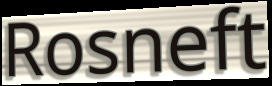
Rosneft